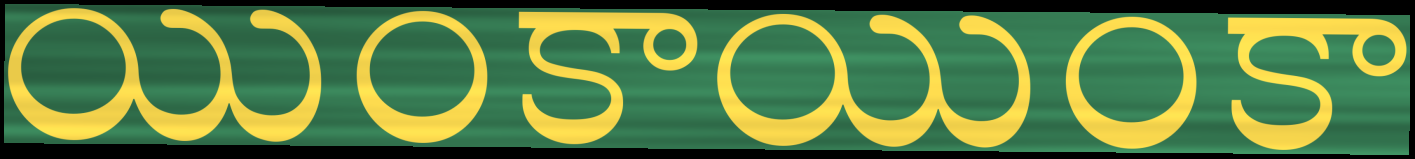
యింకాయింకా